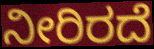
ನೀರಿರದೆ